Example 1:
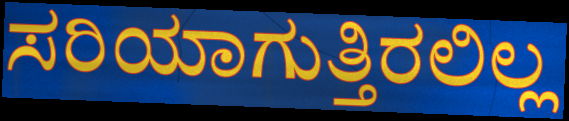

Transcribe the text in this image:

ಸರಿಯಾಗುತ್ತಿರಲಿಲ್ಲ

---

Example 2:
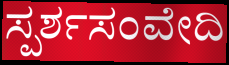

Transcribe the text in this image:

ಸ್ಪರ್ಶಸಂವೇದಿ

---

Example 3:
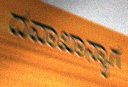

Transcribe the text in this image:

ದವಾಖಾನ್ಯಾಗ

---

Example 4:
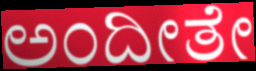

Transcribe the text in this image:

ಅಂದೀತೇ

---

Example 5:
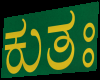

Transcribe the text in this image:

ಕುತಃ